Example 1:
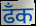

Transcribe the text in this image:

ढँक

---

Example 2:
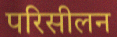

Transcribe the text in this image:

परिसीलन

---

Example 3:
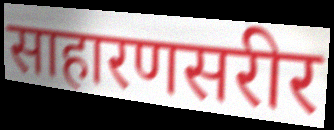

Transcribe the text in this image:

साहारणसरीर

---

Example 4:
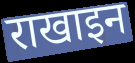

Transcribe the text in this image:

राखाइन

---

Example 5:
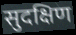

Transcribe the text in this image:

सुदक्षिण